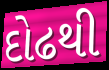
દોઢથી